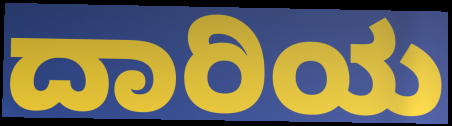
ದಾರಿಯ